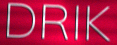
DRIK